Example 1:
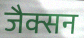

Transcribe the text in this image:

जैक्सन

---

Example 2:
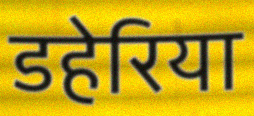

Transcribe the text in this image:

डहेरिया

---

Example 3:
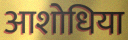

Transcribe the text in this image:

आशोधिया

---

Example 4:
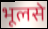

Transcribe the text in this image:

भूलसे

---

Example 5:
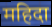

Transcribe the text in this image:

महिदा